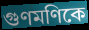
গুণমণিকে